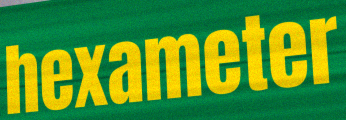
hexameter